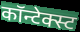
कॉन्टेक्स्ट